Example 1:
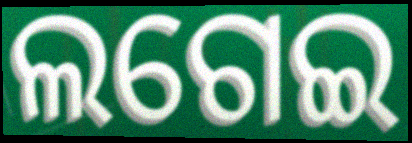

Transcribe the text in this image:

ଲଗେଇ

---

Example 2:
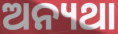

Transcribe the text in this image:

ଅନ୍ୟଥା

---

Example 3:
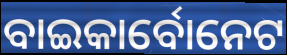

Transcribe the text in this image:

ବାଇକାର୍ବୋନେଟ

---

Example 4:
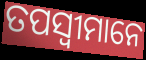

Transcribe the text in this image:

ତପସ୍ୱୀମାନେ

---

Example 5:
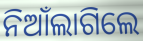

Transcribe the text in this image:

ନିଆଁଲାଗିଲେ